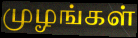
முழங்கள்